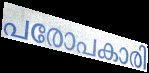
പരോപകാരി